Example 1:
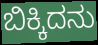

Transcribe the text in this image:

ಬಿಕ್ಕಿದನು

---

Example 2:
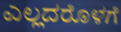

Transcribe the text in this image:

ಎಲ್ಲದರೊಳಗೆ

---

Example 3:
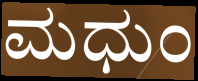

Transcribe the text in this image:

ಮಧುಂ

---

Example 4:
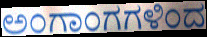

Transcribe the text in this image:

ಅಂಗಾಂಗಗಳಿಂದ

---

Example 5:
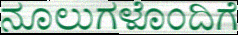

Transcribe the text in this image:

ನೂಲುಗಳೊಂದಿಗೆ